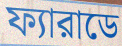
ফ্যারাডে